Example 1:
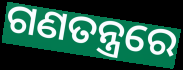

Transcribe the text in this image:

ଗଣତନ୍ତ୍ରରେ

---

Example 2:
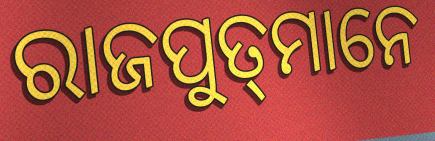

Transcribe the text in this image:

ରାଜପୁତ୍‍ମାନେ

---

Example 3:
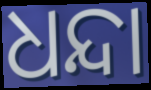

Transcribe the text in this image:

ଧନ୍ଦା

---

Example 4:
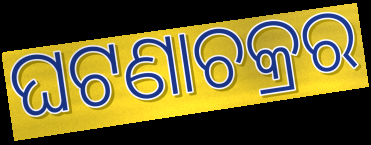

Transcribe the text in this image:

ଘଟଣାଚକ୍ରର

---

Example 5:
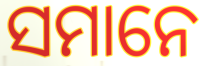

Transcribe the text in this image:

ସମାନେ